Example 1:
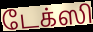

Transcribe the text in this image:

டேக்ஸி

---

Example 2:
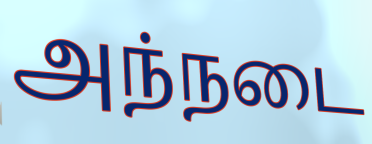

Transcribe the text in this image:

அந்நடை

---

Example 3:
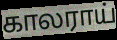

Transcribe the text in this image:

காலராய்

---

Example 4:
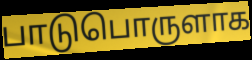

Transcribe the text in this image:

பாடுபொருளாக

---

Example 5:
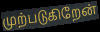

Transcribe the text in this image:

முற்படுகிறேன்